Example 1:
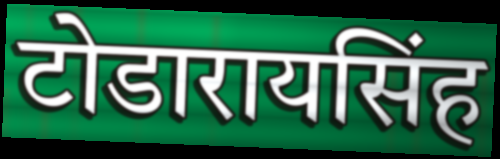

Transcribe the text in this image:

टोडारायसिंह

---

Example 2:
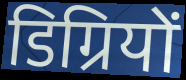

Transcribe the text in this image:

डिग्रियों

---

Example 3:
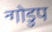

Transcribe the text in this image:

न्गोडुप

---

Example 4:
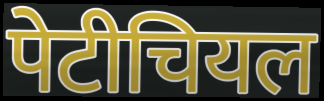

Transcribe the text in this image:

पेटीचियल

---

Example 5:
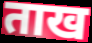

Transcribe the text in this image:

ताख